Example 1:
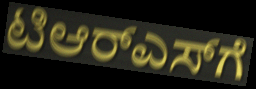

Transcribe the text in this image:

ಟಿಆರ್‌ಎಸ್‌ಗೆ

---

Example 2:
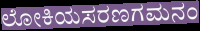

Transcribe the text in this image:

ಲೋಕಿಯಸರಣಗಮನಂ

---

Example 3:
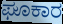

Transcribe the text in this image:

ಘೂಕಾರ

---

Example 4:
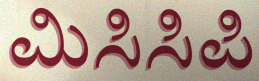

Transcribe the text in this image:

ಮಿಸಿಸಿಪಿ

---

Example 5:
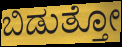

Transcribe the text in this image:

ಬಿಡುತ್ತೋ